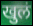
खुलं